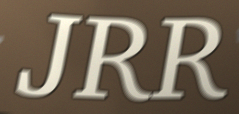
JRR